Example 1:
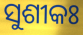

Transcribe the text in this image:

ସୁଶୀକଃ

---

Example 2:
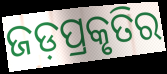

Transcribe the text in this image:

ଜଡ଼ପ୍ରକୃତିର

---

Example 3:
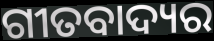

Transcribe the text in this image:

ଗୀତବାଦ୍ୟର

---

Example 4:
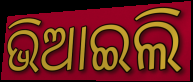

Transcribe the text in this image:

ଭିଆଇଲି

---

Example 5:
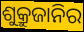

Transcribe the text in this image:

ଶୁକ୍ରୁଜାନିର